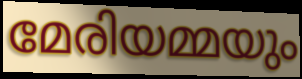
മേരിയമ്മയും